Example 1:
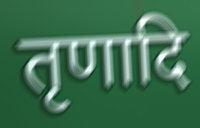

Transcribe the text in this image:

तृणादि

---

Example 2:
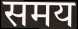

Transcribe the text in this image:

समय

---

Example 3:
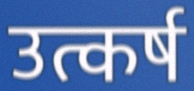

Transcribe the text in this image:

उत्कर्ष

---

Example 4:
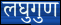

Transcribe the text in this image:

लघुगुण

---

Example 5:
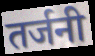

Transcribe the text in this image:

तर्जनी